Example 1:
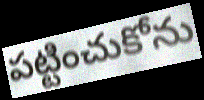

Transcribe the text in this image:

పట్టించుకోను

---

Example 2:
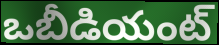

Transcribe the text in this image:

ఒబీడియంట్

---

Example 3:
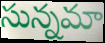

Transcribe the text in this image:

సున్నమా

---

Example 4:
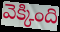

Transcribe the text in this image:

వెక్కింది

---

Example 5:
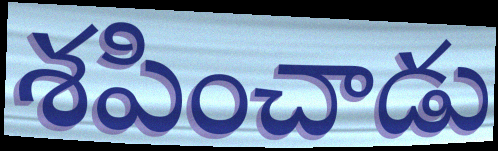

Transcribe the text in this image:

శపించాడు